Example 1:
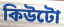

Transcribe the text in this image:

কিউটো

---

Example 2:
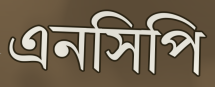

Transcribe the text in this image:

এনসিপি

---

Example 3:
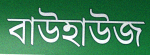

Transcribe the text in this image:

বাউহাউজ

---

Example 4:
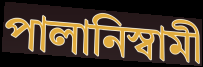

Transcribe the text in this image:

পালানিস্বামী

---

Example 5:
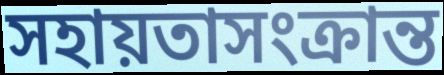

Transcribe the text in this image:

সহায়তাসংক্রান্ত